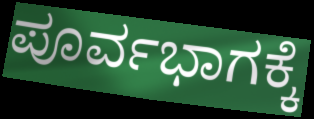
ಪೂರ್ವಭಾಗಕ್ಕೆ